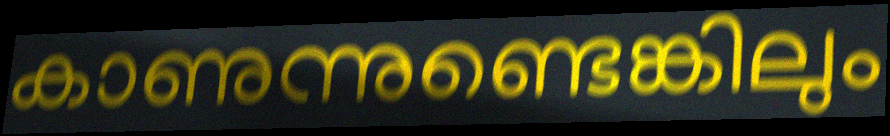
കാണുന്നുണ്ടെങ്കിലും